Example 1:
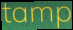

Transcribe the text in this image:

tamp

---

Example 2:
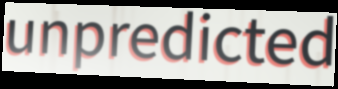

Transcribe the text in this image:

unpredicted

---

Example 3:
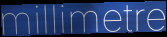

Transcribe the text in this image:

millimetre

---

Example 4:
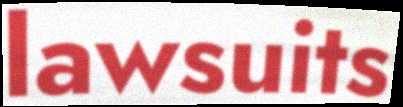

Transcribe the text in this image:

lawsuits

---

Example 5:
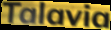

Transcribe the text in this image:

Talavia